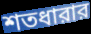
শতধারার